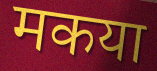
मकया